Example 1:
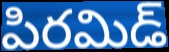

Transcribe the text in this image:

పిరమిడ్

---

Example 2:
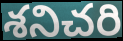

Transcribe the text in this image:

శనిచరి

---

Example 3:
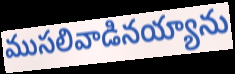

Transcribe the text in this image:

ముసలివాడినయ్యాను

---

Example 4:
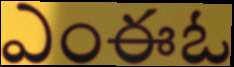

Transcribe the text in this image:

ఎంఈఓ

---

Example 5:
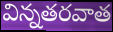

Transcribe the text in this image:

విన్నతరవాత